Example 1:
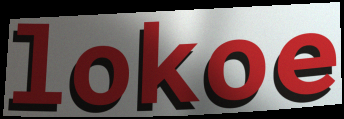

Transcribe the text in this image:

lokoe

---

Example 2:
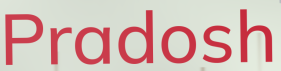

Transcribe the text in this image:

Pradosh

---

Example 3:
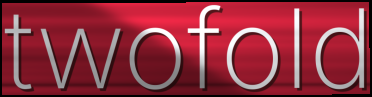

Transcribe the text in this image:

twofold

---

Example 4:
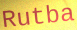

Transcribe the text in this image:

Rutba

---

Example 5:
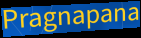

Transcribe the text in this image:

Pragnapana